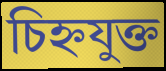
চিহ্নযুক্ত